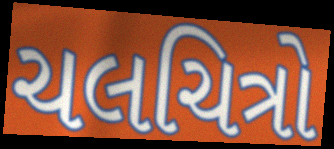
ચલચિત્રો